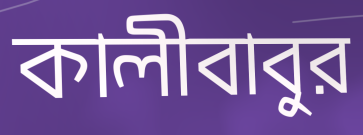
কালীবাবুর